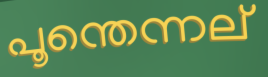
പൂന്തെന്നല്